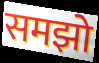
समझो